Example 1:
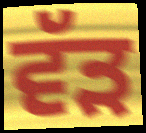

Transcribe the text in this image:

ਵੱੜ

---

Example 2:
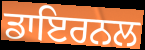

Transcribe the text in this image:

ਡਾਇਰਨਲ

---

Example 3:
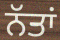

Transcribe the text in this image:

ਨੱਤਾਂ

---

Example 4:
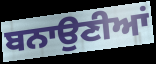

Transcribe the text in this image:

ਬਨਾਉਣੀਆਂ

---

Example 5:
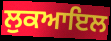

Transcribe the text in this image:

ਲੁਕਆਇਲ